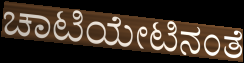
ಚಾಟಿಯೇಟಿನಂತೆ